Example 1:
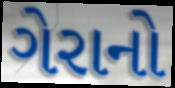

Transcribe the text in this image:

ગેરાનો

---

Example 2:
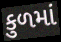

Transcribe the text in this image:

કુળમાં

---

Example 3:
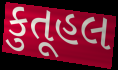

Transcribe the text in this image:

કુતૂહલ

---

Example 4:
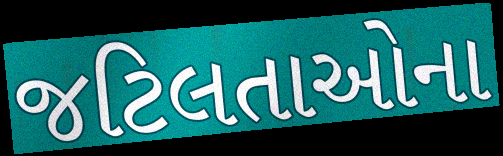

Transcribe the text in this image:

જટિલતાઓના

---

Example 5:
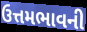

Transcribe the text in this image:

ઉત્તમભાવની